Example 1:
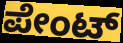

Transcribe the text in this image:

ಪೇಂಟ್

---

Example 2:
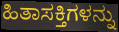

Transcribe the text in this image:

ಹಿತಾಸಕ್ತಿಗಳನ್ನು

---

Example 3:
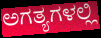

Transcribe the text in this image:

ಅಗತ್ಯಗಳಲ್ಲಿ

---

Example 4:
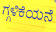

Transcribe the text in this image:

ಗ್ಗಳಿಕೆಯನೆ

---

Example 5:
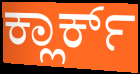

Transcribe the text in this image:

ಕ್ಲಾರ್ಕ್